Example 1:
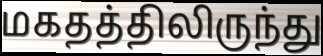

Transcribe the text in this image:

மகதத்திலிருந்து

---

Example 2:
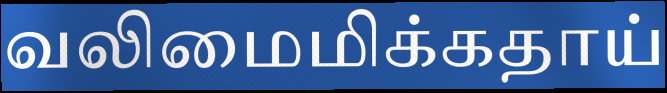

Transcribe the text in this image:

வலிமைமிக்கதாய்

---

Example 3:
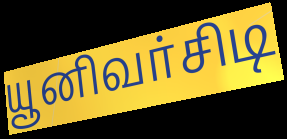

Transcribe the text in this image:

யூனிவர்சிடி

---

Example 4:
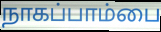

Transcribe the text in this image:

நாகப்பாம்பை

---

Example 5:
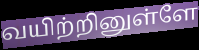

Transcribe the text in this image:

வயிற்றினுள்ளே